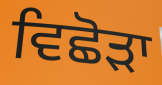
ਵਿਛੋੜਾ